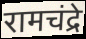
रामचंद्रे